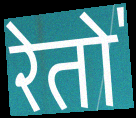
रेतो॑